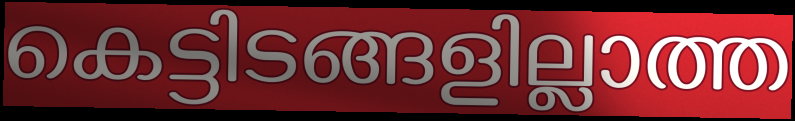
കെട്ടിടങ്ങളില്ലാത്ത